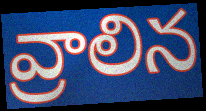
వ్రాలిన